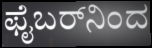
ಫೈಬರ್‌ನಿಂದ